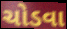
ચોડવા